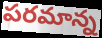
పరమాన్న